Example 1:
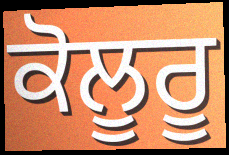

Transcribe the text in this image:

ਕੋਲੂਰੂ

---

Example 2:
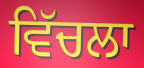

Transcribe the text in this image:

ਵਿੱਚਲਾ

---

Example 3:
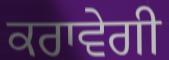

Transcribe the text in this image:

ਕਰਾਵੇਗੀ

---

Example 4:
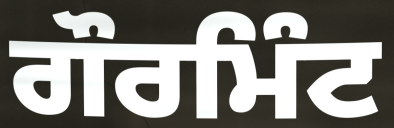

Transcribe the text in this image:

ਗੌਰਮਿੰਟ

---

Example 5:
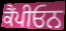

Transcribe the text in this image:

ਕੈਂਪੀਓਨ